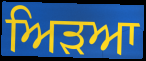
ਅਿੜਆ